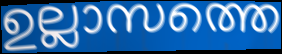
ഉല്ലാസത്തെ